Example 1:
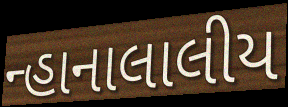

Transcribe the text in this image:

ન્હાનાલાલીય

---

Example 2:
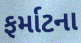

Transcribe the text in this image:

ફર્માટના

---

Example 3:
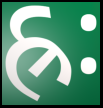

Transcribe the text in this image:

હ્રઃ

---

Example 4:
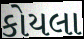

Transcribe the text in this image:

કોયલા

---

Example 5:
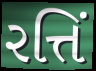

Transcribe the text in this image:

રત્તિં